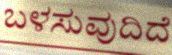
ಬಳಸುವುದಿದೆ